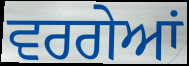
ਵਰਗੇਆਂ